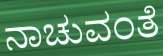
ನಾಚುವಂತೆ